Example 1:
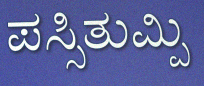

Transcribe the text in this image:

ಪಸ್ಸಿತುಮ್ಪಿ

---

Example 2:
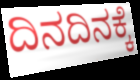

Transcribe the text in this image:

ದಿನದಿನಕ್ಕೆ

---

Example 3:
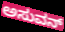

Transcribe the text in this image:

ಅಸುವನ್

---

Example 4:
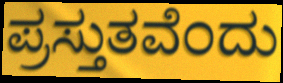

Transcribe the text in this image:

ಪ್ರಸ್ತುತವೆಂದು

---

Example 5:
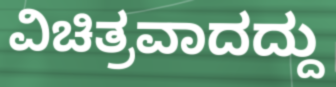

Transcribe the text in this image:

ವಿಚಿತ್ರವಾದದ್ದು